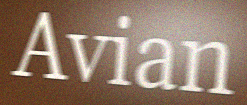
Avian